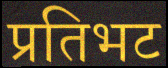
प्रतिभट